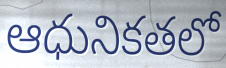
ఆధునికతలో